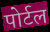
पोर्टल